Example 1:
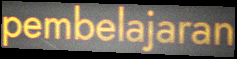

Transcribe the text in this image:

pembelajaran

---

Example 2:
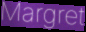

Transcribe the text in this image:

Margret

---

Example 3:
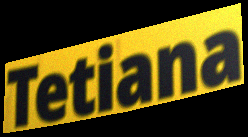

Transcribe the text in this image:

Tetiana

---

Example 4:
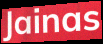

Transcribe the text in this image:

Jainas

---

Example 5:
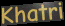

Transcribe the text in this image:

Khatri